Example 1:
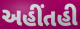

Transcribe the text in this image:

અહીંતહી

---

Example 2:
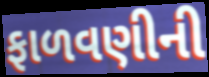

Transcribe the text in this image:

ફાળવણીની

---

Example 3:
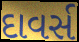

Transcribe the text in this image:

દાવર્સ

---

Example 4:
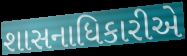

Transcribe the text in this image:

શાસનાધિકારીએ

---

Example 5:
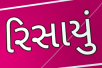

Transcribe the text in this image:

રિસાયું